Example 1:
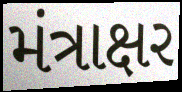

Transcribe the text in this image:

મંત્રાક્ષર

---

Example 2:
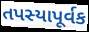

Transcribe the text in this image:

તપસ્યાપૂર્વક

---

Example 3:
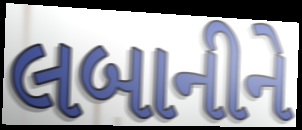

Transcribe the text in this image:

લબાનીને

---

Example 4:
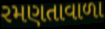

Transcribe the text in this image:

રમણતાવાળા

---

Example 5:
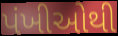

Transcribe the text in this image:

પંખીઓથી